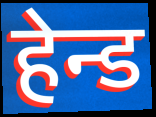
हेन्ड